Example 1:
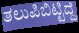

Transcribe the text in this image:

ತಲುಪಿಬಿಟ್ಟಿದ್ದೆ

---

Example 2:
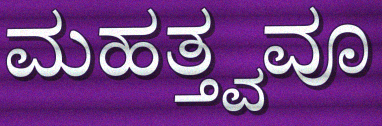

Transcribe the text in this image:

ಮಹತ್ತ್ವವೂ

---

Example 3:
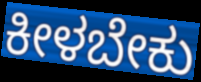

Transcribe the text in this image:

ಕೀಳಬೇಕು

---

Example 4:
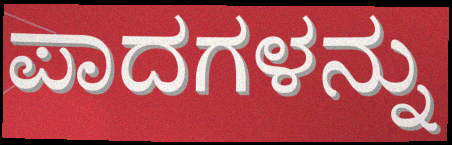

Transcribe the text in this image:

ಪಾದಗಳನ್ನು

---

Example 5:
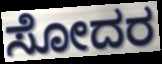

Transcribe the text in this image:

ಸೋದರ